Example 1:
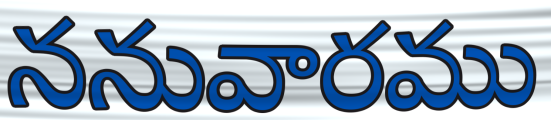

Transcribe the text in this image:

ననువారము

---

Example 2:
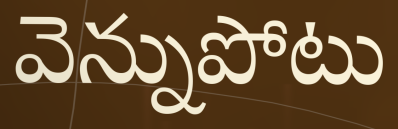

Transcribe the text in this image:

వెన్నుపోటు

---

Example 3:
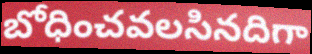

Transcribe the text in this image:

బోధించవలసినదిగా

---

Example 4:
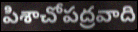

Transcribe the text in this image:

పిశాచోపద్రవాది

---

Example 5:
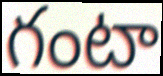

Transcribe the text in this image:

గంటా